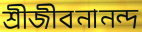
শ্রীজীবনানন্দ